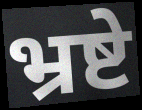
भ्रष्टे